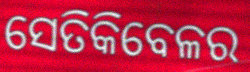
ସେତିକିବେଳର